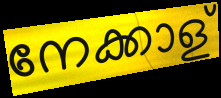
നേക്കാള്